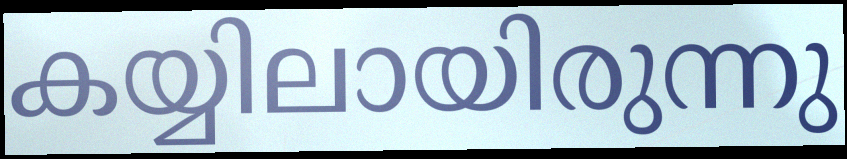
കയ്യിലായിരുന്നു